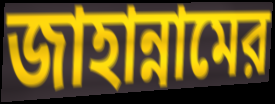
জাহান্নামের